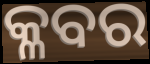
କ୍ଳବର